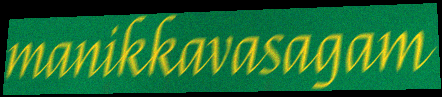
manikkavasagam